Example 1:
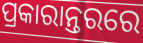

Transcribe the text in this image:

ପ୍ରକାରାନ୍ତରରେ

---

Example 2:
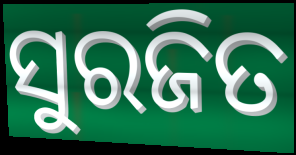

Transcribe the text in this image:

ସୁରଜିତ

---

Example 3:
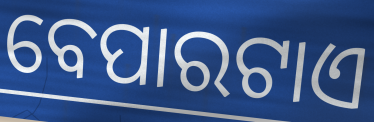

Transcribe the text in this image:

ବେପାରଟାଏ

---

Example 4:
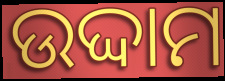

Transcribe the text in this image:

ଉଦ୍ଦାମ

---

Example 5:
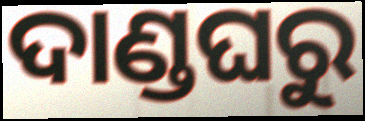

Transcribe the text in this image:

ଦାଣ୍ଡଘରୁ